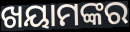
ଖୟାମଙ୍କର